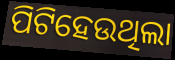
ପିଟିହେଉଥିଲା